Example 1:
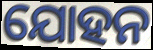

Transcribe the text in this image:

ଯୋହନ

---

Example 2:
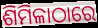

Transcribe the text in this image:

ଶିମିଳାଠାରେ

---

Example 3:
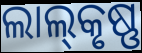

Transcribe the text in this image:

ଲାଲ୍‌କୃଷ୍ଣ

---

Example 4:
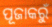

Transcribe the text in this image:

ପୂଜାକରୁଁ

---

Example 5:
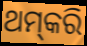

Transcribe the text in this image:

ଥମ୍‌କରି